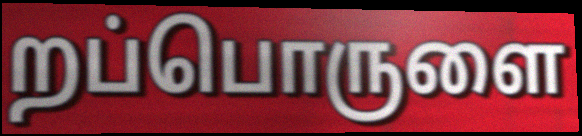
றப்பொருளை